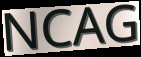
NCAG